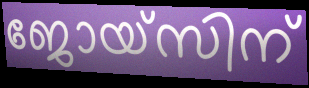
ജോയ്സിന്